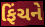
ફિંચને